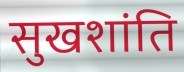
सुखशांति